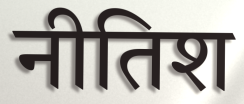
नीतिश